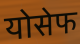
योसेफ